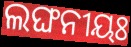
ଲଙ୍ଘନୀୟଃ